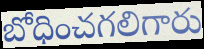
బోధించగలిగారు